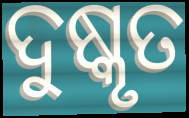
ଦୁଷ୍କୃତ